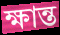
ক্ষান্ত